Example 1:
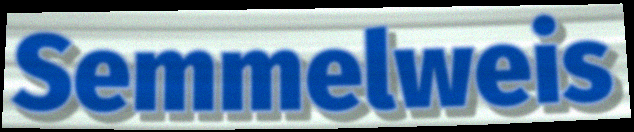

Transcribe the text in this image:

Semmelweis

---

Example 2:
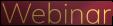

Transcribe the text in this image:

Webinar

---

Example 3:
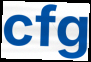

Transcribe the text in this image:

cfg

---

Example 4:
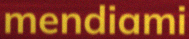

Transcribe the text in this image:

mendiami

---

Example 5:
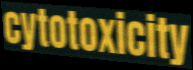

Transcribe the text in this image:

cytotoxicity